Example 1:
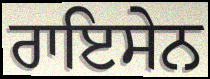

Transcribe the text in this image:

ਰਾਇਸੇਨ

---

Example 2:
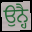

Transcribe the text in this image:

ਉਨ੍ਹੈ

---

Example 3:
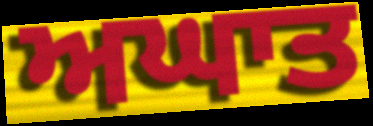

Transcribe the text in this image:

ਅਘਾਤ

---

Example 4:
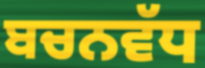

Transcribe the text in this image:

ਬਚਨਵੱਧ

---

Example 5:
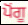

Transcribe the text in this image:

ਪੋਂਗੂ